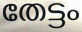
തേട്ടം